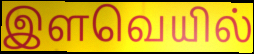
இளவெயில்